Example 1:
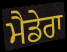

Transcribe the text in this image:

ਮੈਡੇਰਾ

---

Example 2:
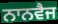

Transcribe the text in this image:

ਨਾਨਵੈਜ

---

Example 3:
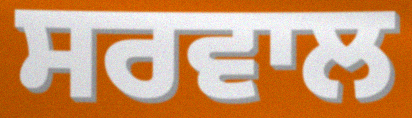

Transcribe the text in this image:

ਸਰਵਾਲ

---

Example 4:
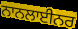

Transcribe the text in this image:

ਨਾਨਲਾਈਨਰ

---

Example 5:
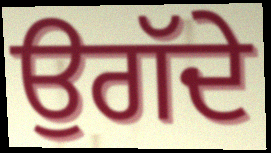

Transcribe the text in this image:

ਉਗੱਦੇ